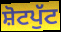
ਸ਼ੋਟਪੁੱਟ